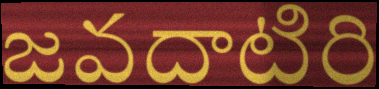
జవదాటిరి